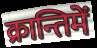
क्रान्तिमें